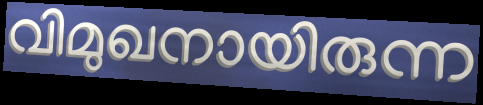
വിമുഖനായിരുന്ന